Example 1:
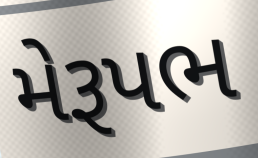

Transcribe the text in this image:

મેરૂપભ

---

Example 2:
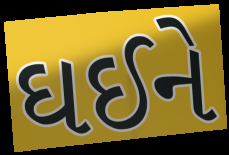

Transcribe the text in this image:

ઘઈને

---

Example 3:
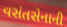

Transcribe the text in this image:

વસંતસેનાની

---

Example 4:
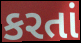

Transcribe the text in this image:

કરતાં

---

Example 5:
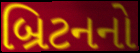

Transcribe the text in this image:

બ્રિટનનો